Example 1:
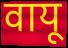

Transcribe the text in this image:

वायू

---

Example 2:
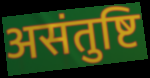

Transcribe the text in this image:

असंतुष्टि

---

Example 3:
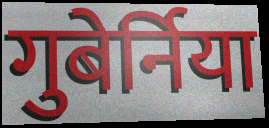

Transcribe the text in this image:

गुबेर्निया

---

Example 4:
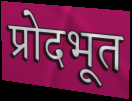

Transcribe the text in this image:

प्रोदभूत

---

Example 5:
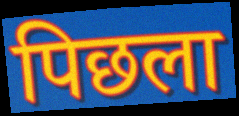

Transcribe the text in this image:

पिछला